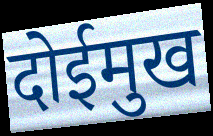
दोईमुख